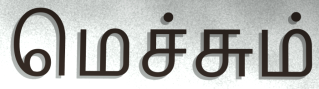
மெச்சும்